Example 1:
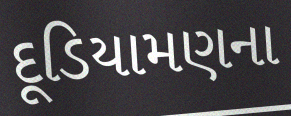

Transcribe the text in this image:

દૂડિયામણના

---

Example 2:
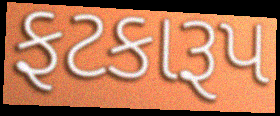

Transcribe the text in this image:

ફટકારૂપ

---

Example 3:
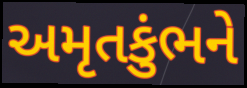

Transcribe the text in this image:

અમૃતકુંભને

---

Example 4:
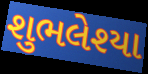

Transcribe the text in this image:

શુભલેશ્યા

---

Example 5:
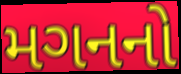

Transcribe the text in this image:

મગનનો